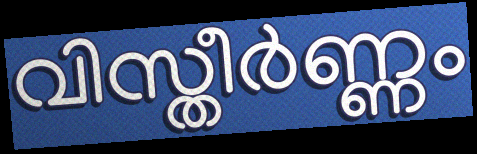
വിസ്തീർണ്ണം